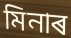
মিনাৰ